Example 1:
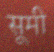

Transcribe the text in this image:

सूमी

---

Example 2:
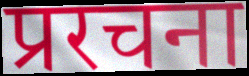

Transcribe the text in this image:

प्ररचना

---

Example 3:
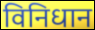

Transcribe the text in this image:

विनिधान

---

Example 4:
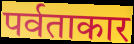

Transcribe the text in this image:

पर्वताकार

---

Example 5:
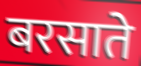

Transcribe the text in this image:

बरसाते